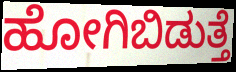
ಹೋಗಿಬಿಡುತ್ತೆ